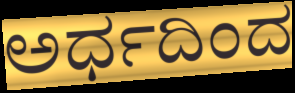
ಅರ್ಧದಿಂದ